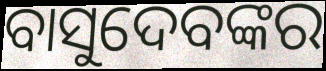
ବାସୁଦେବଙ୍କର